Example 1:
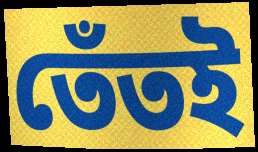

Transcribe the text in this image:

তেঁতই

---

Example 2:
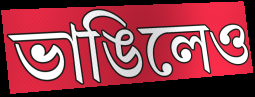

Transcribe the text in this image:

ভাঙিলেও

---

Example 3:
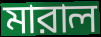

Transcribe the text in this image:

মারাল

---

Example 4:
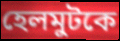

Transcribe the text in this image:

হেলমুটকে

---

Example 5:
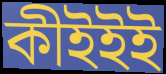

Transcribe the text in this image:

কীইইই